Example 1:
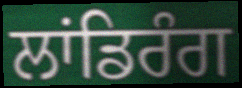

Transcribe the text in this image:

ਲਾਂਡਿਰੰਗ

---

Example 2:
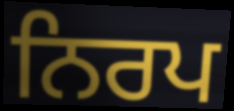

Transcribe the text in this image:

ਨਿਰਪ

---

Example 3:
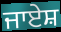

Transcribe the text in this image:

ਜਾਏਸ਼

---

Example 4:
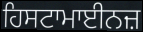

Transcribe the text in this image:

ਹਿਸਟਾਮਾਈਨਜ਼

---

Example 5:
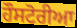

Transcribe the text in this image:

ਹੌਸਟੋਰੀਆ